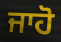
ਜਾਹੋ